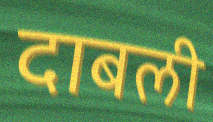
दाबली